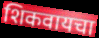
शिकवायचा